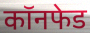
कॉनफेड